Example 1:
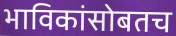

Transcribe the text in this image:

भाविकांसोबतच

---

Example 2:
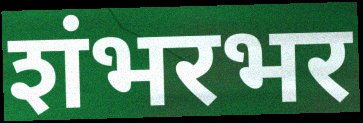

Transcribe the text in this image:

शंभरभर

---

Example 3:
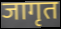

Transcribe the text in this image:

जागृत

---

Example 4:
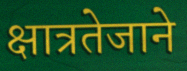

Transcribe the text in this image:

क्षात्रतेजाने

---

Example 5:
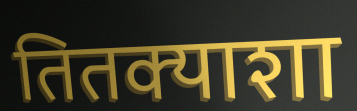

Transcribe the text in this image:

तितक्याशा